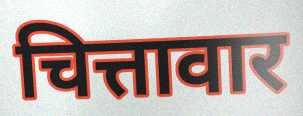
चित्तावार